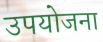
उपयोजना